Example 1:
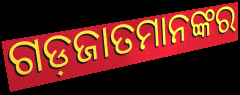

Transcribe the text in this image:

ଗଡ଼ଜାତମାନଙ୍କର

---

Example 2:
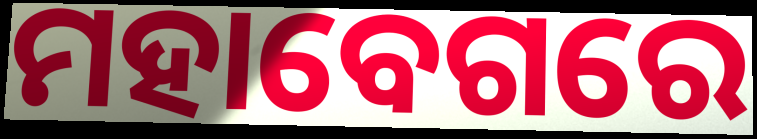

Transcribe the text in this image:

ମହାବେଗରେ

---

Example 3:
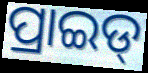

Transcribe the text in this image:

ପ୍ରାଇଡ୍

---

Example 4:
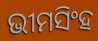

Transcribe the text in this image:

ଭୀମସିଂହ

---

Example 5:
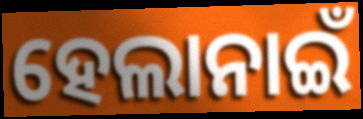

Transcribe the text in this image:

ହେଲାନାଇଁ